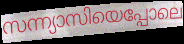
സന്ന്യാസിയെപ്പോലെ